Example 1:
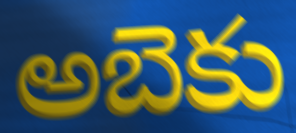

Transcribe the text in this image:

అబెకు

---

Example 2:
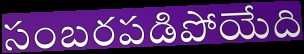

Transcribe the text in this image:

సంబరపడిపోయేది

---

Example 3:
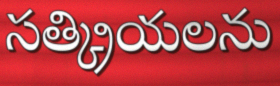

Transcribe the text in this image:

సత్క్రియలను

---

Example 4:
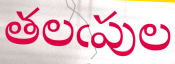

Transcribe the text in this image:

తలఁపుల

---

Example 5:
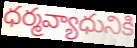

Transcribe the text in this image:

ధర్మవ్యాధునికి